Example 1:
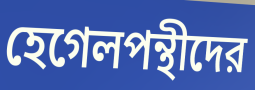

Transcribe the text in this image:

হেগেলপন্থীদের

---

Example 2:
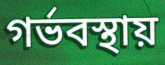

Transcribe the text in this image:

গর্ভবস্থায়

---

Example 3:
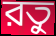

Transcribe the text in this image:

রতু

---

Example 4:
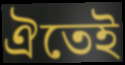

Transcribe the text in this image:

ঐতেই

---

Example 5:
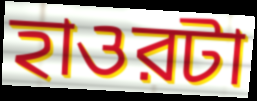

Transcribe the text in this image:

হাওরটা